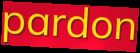
pardon